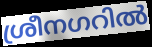
ശ്രീനഗറിൽ